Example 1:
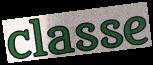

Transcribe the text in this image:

classe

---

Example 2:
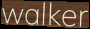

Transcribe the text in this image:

walker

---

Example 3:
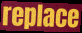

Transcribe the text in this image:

replace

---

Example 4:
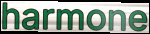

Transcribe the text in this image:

harmone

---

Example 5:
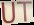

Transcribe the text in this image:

UT